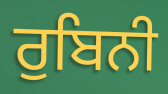
ਰੁਬਿਨੀ